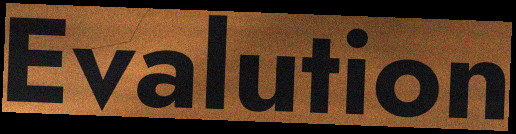
Evalution